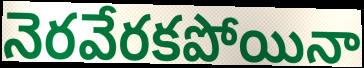
నెరవేరకపోయినా